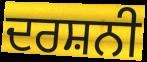
ਦਰਸ਼ਨੀ